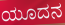
ಯೂದನ